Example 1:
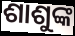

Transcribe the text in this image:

ଶାଶୁଙ୍କ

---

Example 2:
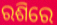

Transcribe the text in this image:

ରଶିରେ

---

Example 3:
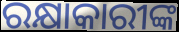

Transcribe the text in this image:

ରକ୍ଷାକାରୀଙ୍କ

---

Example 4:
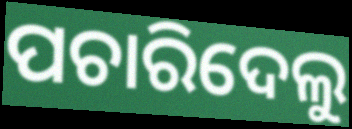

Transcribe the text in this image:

ପଚାରିଦେଲୁ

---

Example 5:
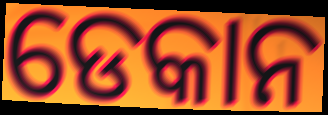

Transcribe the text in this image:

ଡେକାନ